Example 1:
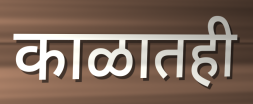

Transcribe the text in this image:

काळातही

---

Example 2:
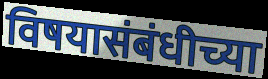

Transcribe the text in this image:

विषयासंबंधीच्या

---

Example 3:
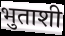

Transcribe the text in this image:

भुताशी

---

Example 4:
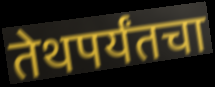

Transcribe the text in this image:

तेथपर्यंतचा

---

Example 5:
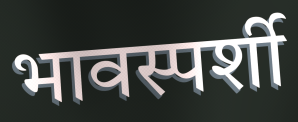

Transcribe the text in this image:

भावस्पर्शी